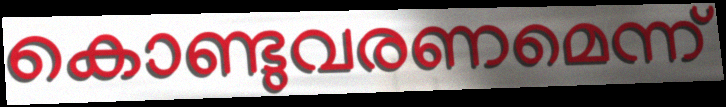
കൊണ്ടുവരണമെന്ന്